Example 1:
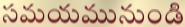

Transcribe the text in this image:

సమయమునుండి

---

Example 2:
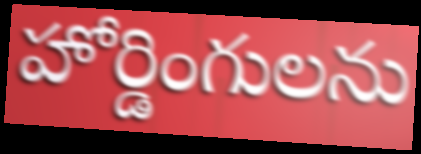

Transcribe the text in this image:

హోర్డింగులను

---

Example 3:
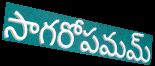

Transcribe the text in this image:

సాగరోపమమ్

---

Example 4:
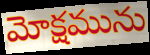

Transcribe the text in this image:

మోక్షమును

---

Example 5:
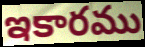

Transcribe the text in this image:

ఇకారము